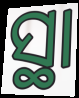
ସ୍ଥା